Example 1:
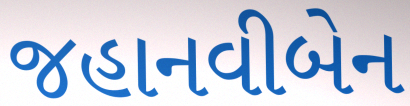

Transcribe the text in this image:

જહાનવીબેન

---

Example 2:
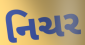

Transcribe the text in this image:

નિચર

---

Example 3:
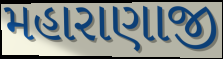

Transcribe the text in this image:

મહારાણાજી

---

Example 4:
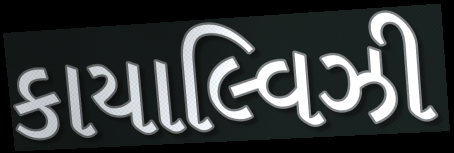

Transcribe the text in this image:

કાયાલ્વિઝી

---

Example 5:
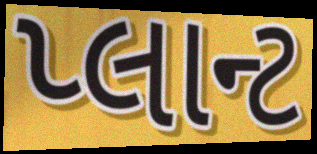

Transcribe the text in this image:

પ્લાન્ટ